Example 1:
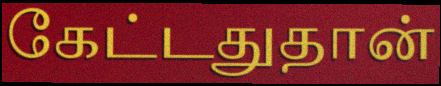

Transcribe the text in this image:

கேட்டதுதான்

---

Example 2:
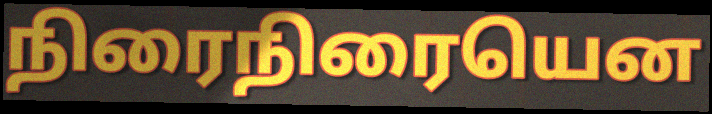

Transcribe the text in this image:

நிரைநிரையென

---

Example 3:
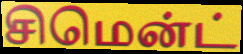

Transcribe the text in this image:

சிமென்ட்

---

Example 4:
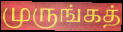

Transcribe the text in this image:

முருங்கத்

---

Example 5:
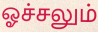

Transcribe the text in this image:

ஓச்சலும்